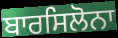
ਬਾਰਸਿਲੋਨਾ